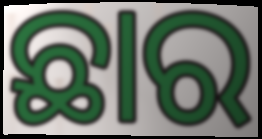
ଛାର